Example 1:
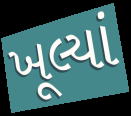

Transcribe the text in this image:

ખૂલ્યાં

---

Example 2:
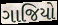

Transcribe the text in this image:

ગાજિયો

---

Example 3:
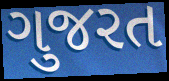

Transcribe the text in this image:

ગુજરત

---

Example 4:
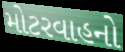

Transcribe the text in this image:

મોટરવાહનો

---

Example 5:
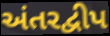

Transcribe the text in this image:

અંતરદ્વીપ